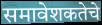
समावेशकतेचे